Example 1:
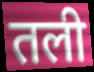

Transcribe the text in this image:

तली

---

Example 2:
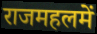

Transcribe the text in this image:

राजमहलमें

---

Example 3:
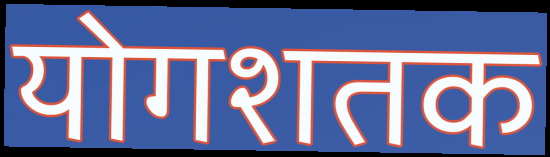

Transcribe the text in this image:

योगशतक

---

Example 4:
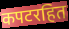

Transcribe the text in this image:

कपटरहित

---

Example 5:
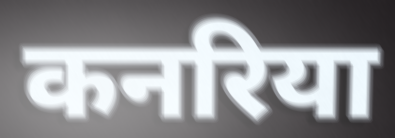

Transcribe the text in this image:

कनरिया